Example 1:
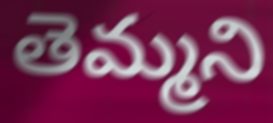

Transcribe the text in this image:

తెమ్మని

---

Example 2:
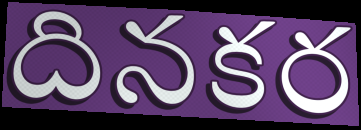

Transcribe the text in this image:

దినకర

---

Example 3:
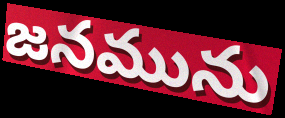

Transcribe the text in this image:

జనమును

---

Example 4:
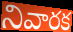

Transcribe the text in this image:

నివారక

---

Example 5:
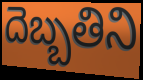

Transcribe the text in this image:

దెబ్బతిని